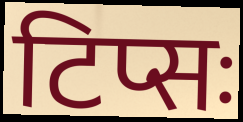
टिप्सः